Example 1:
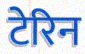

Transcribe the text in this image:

टेरिन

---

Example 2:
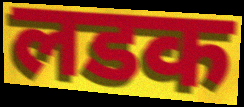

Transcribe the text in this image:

लडक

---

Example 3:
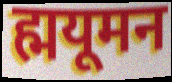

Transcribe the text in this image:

ह्मयूमन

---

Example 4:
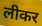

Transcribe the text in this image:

लीकर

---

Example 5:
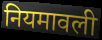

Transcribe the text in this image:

नियमावली